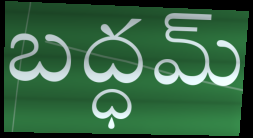
బద్ధమ్